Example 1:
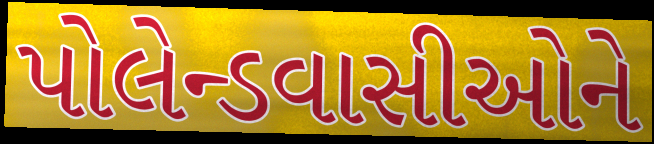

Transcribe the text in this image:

પોલેન્ડવાસીઓને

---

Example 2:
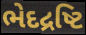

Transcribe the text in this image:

ભેદદ્રષ્ટિ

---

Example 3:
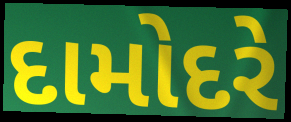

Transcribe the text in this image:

દામોદરે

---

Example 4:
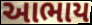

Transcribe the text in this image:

આભાય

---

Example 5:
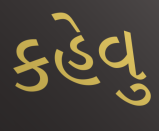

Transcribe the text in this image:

કહેવુ